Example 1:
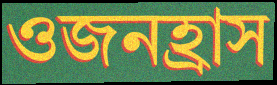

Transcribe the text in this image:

ওজনহ্রাস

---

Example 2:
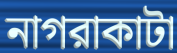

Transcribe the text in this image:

নাগরাকাটা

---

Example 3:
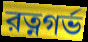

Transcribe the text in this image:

রত্নগর্ভ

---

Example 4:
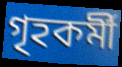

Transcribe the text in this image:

গৃহকর্মী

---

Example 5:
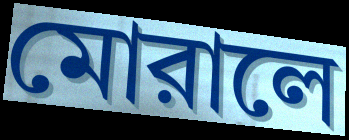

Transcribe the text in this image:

মোরালে